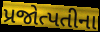
પ્રજોત્પતીના